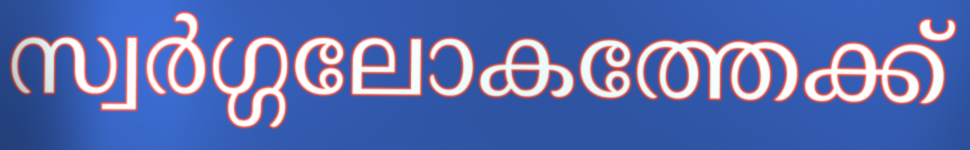
സ്വർഗ്ഗലോകത്തേക്ക്